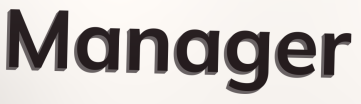
Manager